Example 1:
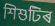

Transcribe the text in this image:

শিশুটিৰ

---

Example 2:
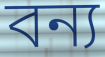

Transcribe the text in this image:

বন্য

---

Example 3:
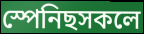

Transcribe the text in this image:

স্পেনিছসকলে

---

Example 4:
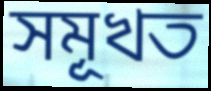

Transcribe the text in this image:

সমূখত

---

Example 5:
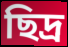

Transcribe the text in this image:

ছিদ্ৰ